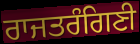
ਰਾਜਤਰੰਗਿਣੀ